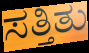
ಸತ್ತಿತು